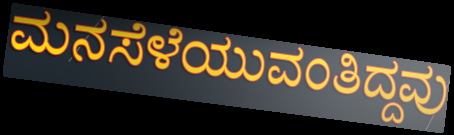
ಮನಸೆಳೆಯುವಂತಿದ್ದವು